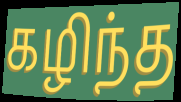
கழிந்த